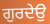
ਗੁਰਦੇਉ